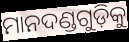
ମାନଦଣ୍ଡଗୁଡ଼ିକୁ